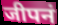
जीपनं